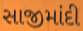
સાજીમાંદી